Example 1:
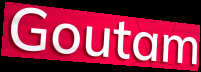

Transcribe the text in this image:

Goutam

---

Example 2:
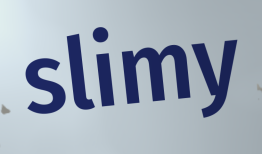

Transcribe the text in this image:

slimy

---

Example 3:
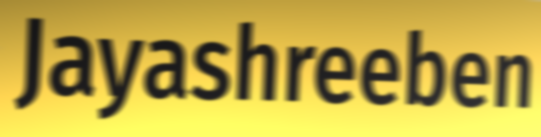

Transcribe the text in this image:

Jayashreeben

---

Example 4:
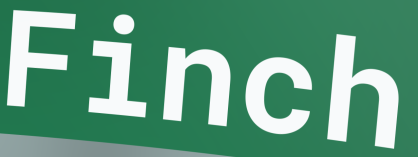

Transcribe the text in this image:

Finch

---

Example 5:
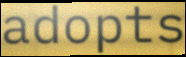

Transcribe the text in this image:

adopts